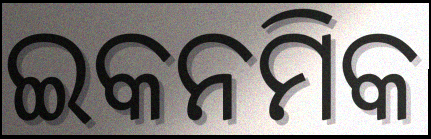
ଇକନମିକ